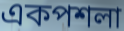
একপশলা